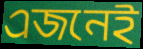
এজনেই